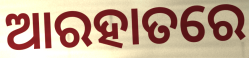
ଆରହାତରେ